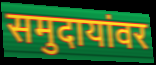
समुदायांवर